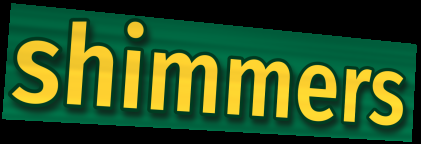
shimmers